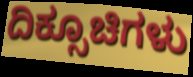
ದಿಕ್ಸೂಚಿಗಳು